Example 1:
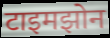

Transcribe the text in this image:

टाइमझोन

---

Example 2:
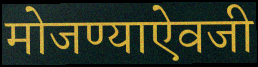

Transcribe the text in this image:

मोजण्याऐवजी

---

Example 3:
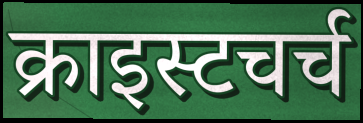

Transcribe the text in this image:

क्राइस्टचर्च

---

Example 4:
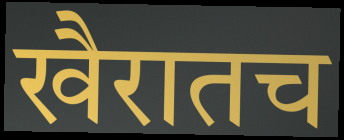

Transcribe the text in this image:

खैरातच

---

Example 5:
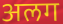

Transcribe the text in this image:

अलग